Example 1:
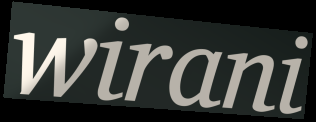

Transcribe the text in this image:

wirani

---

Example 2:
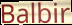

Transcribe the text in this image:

Balbir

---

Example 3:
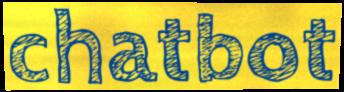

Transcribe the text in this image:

chatbot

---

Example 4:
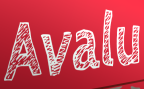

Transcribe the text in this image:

Avalu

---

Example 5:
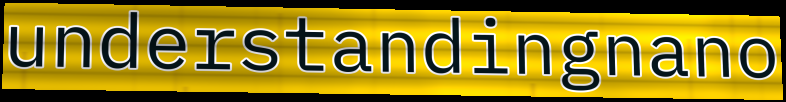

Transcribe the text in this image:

understandingnano